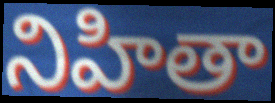
నిహితా